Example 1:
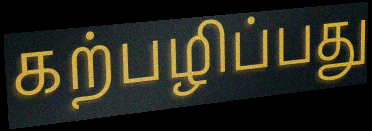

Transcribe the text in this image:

கற்பழிப்பது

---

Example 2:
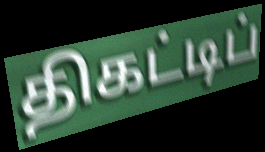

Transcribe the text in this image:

திகட்டிப்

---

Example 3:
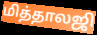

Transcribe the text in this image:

மித்தாலஜி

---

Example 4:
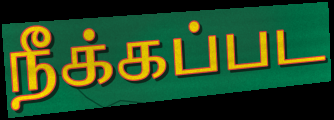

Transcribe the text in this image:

நீக்கப்பட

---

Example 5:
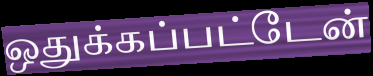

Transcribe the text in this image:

ஒதுக்கப்பட்டேன்